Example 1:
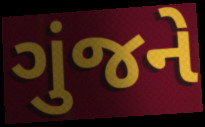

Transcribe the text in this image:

ગુંજને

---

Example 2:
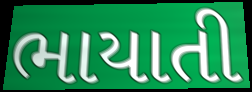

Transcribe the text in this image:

ભાયાતી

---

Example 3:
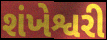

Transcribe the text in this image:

શંખેશ્વરી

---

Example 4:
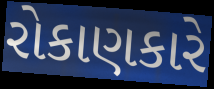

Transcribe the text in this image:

રોકાણકારે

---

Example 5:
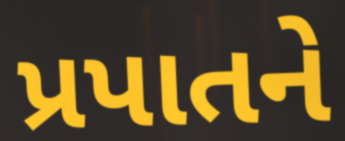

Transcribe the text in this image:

પ્રપાતને